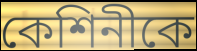
কেশিনীকে